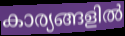
കാര്യങ്ങളിൽ